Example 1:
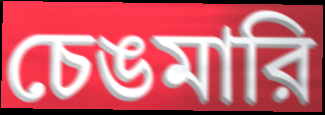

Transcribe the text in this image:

চেঙমারি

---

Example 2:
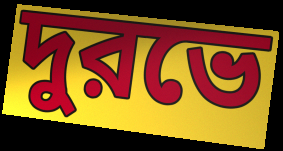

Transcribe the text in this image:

দুরভে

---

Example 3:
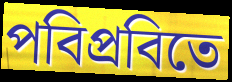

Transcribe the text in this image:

পবিপ্রবিতে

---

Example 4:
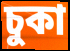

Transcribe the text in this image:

চুকা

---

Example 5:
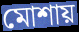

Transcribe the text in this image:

মোশায়